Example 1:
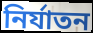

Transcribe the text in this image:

নিৰ্যাতন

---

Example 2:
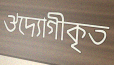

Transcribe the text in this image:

ঔদ্যোগীকৃত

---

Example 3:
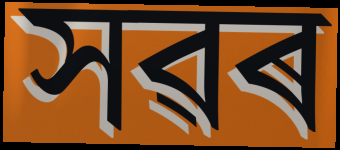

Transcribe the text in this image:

সৱৰ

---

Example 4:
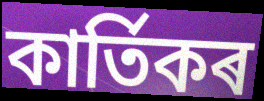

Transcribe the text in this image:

কাৰ্তিকৰ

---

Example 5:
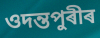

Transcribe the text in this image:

ওদন্তপুৰীৰ